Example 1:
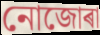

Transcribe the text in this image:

নোজোৰা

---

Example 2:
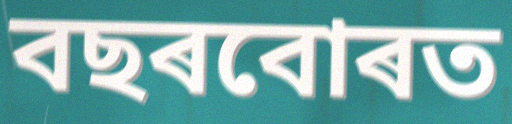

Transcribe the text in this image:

বছৰবোৰত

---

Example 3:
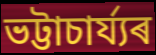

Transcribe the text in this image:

ভট্টাচাৰ্য্যৰ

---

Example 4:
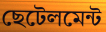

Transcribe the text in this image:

ছেটেলমেন্ট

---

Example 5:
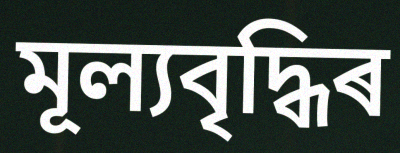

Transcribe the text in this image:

মূল্যবৃদ্ধিৰ